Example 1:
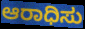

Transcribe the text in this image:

ಆರಾಧಿಸು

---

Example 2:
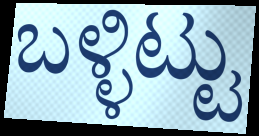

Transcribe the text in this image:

ಬಳ್ಳಿಟ್ಟು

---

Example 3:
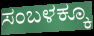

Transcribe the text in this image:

ಸಂಬಳಕ್ಕೂ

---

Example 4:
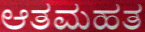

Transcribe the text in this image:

ಆತಮಹತ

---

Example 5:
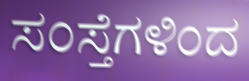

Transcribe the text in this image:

ಸಂಸ್ತೆಗಳಿಂದ